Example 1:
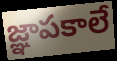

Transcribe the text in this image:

జ్ఞాపకాలే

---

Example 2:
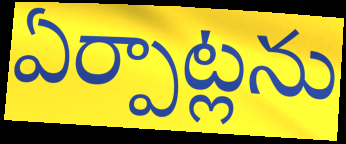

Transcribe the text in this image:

ఏర్పాట్లను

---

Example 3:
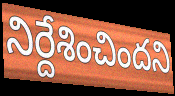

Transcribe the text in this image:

నిర్దేశించిందని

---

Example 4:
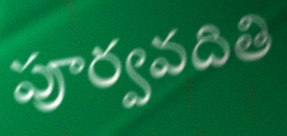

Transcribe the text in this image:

పూర్వవదితి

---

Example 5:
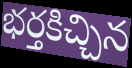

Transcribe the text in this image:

భర్తకిచ్చిన